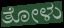
ತೋಳು